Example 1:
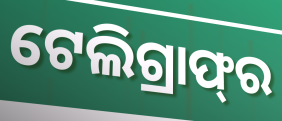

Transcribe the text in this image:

ଟେଲିଗ୍ରାଫ୍‌ର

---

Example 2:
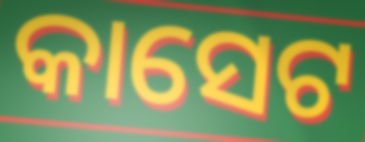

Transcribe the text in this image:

କାସେଟ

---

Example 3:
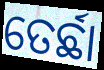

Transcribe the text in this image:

ତେର୍ଛା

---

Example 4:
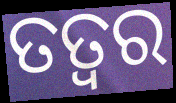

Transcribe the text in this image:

ତତ୍ଵର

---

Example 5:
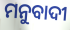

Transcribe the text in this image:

ମନୁବାଦୀ